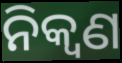
ନିକ୍ୱଣ